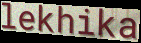
lekhika